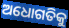
ଅଧୋଗତିକୁ